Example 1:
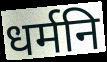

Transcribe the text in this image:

धर्मनि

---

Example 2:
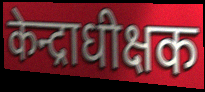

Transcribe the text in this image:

केन्द्राधीक्षक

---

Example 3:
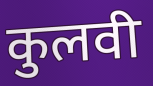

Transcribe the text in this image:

कुलवी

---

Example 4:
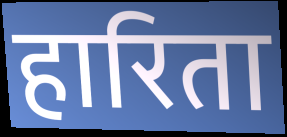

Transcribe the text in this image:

हारिता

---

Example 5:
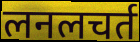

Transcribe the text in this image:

लनलचर्त